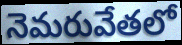
నెమరువేతలో